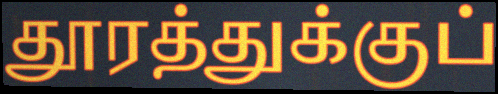
தூரத்துக்குப்